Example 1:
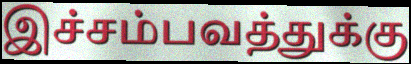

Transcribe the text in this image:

இச்சம்பவத்துக்கு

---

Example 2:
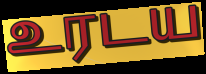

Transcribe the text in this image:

உரடய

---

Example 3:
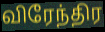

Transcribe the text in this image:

விரேந்திர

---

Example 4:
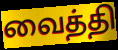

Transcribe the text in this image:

வைத்தி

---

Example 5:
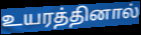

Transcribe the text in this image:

உயரத்தினால்